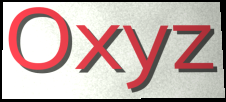
Oxyz